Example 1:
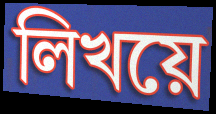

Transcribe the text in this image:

লিখয়ে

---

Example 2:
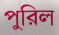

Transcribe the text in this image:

পুরিল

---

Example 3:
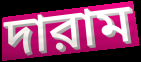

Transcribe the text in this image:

দারাম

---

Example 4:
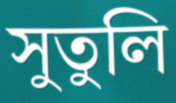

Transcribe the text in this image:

সুতুলি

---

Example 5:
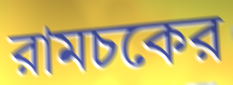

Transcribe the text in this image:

রামচকের